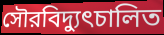
সৌরবিদ্যুৎচালিত